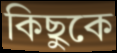
কিছুকে